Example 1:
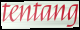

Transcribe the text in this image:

tentang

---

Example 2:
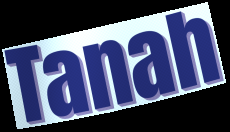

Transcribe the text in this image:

Tanah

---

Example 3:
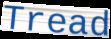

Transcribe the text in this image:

Tread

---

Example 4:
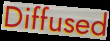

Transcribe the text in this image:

Diffused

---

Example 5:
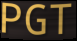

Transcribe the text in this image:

PGT